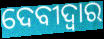
ଦେବୀଦ୍ବାର